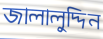
জালালুদ্দিন